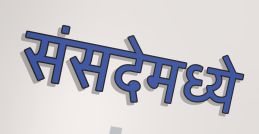
संसदेमध्ये